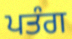
ਪਤੰਗ